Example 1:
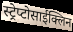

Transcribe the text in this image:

स्ट्रेप्टोसाईक्लिन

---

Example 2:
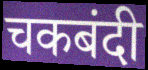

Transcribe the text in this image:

चकबंदी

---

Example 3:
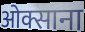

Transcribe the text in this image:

ओक्साना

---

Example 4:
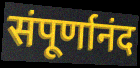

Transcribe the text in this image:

संपूर्णानंद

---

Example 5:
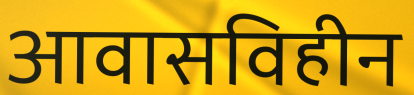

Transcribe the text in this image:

आवासविहीन